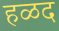
हळद